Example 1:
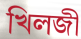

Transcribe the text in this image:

খিলজী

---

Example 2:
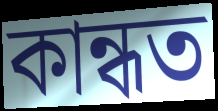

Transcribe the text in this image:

কান্ধত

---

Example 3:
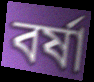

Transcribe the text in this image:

বৰ্ষা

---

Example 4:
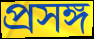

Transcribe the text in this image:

প্ৰসঙ্গ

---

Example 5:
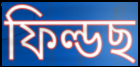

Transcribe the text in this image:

ফিল্ডছ